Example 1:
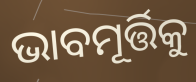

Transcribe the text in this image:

ଭାବମୂର୍ତ୍ତିକୁ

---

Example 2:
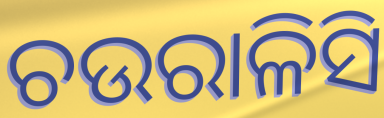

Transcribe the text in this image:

ଚଉରାଳିସି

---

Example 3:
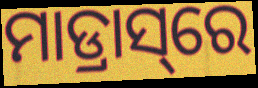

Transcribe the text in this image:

ମାଡ୍ରାସ୍‌ରେ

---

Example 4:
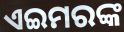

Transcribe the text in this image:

ଏଇମରଙ୍କ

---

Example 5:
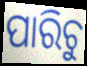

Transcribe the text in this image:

ପାରିଚୁ